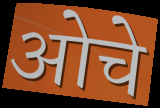
ओचे